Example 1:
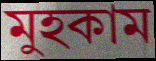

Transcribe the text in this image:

মুহকাম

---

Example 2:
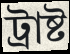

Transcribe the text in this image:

ট্ৰাষ্ট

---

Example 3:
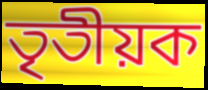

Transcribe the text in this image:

তৃতীয়ক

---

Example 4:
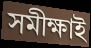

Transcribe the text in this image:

সমীক্ষাই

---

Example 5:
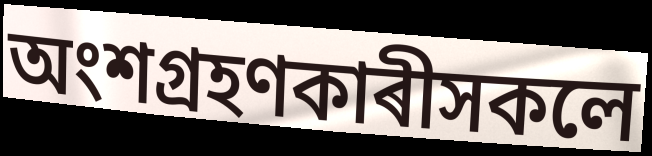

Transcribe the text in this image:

অংশগ্ৰহণকাৰীসকলে